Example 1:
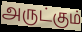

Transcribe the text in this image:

அருட்கும்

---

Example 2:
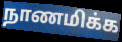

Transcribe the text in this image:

நாணமிக்க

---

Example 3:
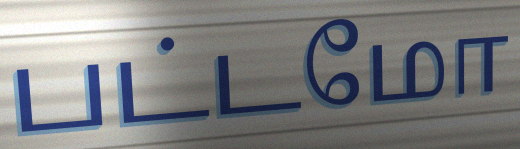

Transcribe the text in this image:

பட்டமோ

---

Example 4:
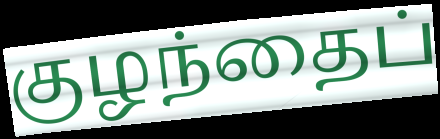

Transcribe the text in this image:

குழந்தைப்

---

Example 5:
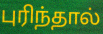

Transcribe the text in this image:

புரிந்தால்